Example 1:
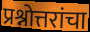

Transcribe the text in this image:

प्रश्नोत्तरांचा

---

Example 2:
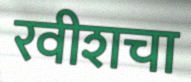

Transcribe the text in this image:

रवीशचा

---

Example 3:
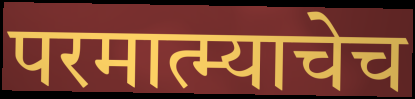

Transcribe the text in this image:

परमात्म्याचेच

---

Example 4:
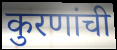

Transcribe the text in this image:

कुरणांची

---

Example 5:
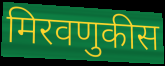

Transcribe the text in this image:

मिरवणुकीस